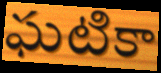
ఘటికా